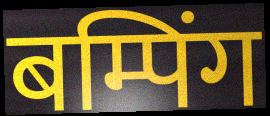
बम्पिंग